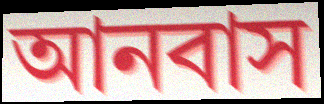
আনবাস